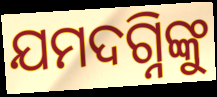
ଯମଦଗ୍ନିଙ୍କୁ